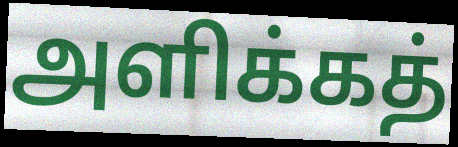
அளிக்கத்